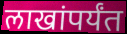
लाखांपर्यंत